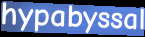
hypabyssal